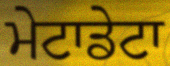
ਮੇਟਾਡੇਟਾ